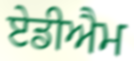
ਏਡੀਐਮ